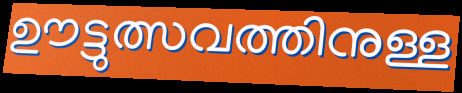
ഊട്ടുത്സവത്തിനുള്ള